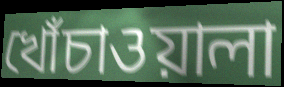
খোঁচাওয়ালা